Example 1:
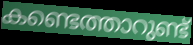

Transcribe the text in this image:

കണ്ടെത്താറുണ്ട്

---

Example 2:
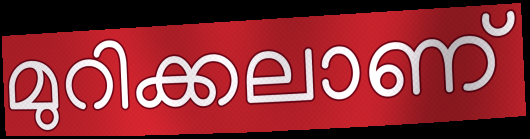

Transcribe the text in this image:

മുറിക്കലാണ്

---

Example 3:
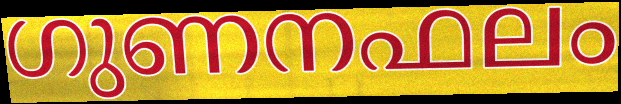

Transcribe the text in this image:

ഗുണനഫലം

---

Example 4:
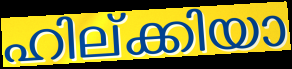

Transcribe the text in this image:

ഹില്ക്കിയാ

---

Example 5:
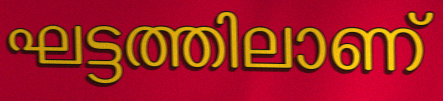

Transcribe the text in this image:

ഘട്ടത്തിലാണ്